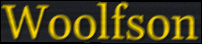
Woolfson